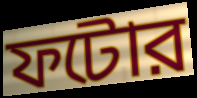
ফটোর